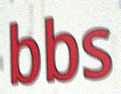
bbs